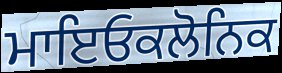
ਮਾਇਓਕਲੋਨਿਕ